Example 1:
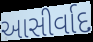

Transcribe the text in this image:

આસીર્વાદ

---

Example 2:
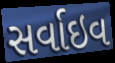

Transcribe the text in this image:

સર્વાઇવ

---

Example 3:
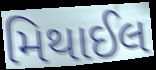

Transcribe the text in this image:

મિથાઈલ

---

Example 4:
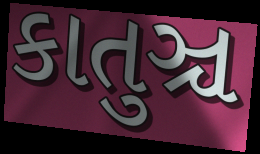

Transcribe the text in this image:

કાતુઞ્ચ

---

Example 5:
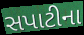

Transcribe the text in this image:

સપાટીના